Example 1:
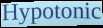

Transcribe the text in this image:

Hypotonic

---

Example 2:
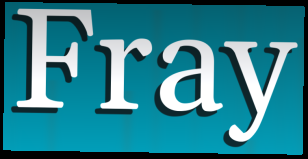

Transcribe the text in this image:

Fray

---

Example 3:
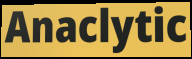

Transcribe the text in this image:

Anaclytic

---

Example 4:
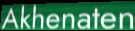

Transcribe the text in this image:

Akhenaten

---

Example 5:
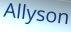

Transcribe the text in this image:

Allyson